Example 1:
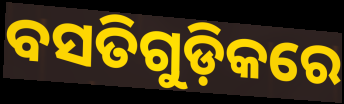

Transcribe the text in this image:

ବସତିଗୁଡ଼ିକରେ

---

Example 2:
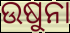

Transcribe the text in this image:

ଉଷୁନା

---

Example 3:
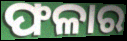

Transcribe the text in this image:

ଫଳାର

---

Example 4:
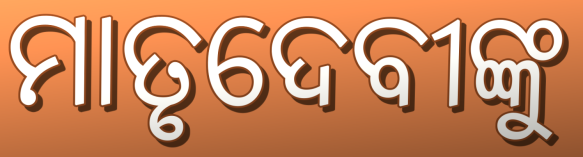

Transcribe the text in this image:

ମାତୃଦେବୀଙ୍କୁ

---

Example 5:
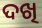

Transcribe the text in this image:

ଦଖି